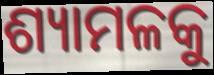
ଶ୍ୟାମଳକୁ